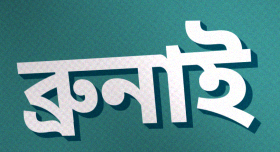
ব্ৰুনাই